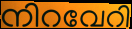
നിറവേറി